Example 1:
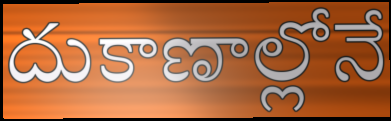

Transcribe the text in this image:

దుకాణాల్లోనే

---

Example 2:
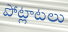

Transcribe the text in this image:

పోట్లాటలు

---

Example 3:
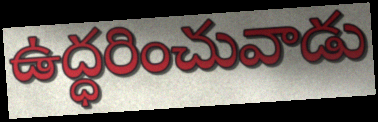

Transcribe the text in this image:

ఉద్ధరించువాడు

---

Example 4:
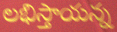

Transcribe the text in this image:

లభిస్తాయన్న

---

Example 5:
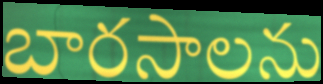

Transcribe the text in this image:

బారసాలను